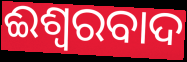
ଈଶ୍ୱରବାଦ